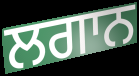
ਲਗਾਨ